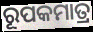
ରୂପକମାତ୍ର